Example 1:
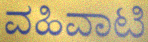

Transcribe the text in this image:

ವಹಿವಾಟಿ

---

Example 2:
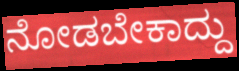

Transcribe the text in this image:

ನೋಡಬೇಕಾದ್ದು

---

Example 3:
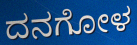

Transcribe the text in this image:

ದನಗೋಳ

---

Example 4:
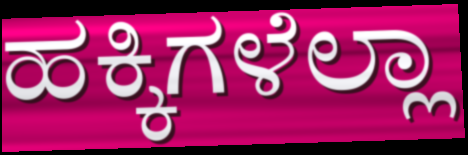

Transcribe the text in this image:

ಹಕ್ಕಿಗಳೆಲ್ಲಾ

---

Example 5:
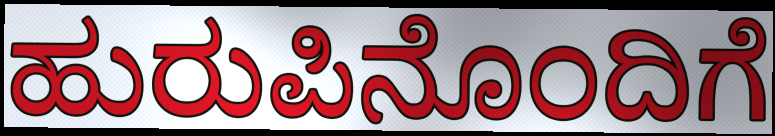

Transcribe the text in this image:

ಹುರುಪಿನೊಂದಿಗೆ